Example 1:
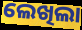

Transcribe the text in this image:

ଲେଖିଲା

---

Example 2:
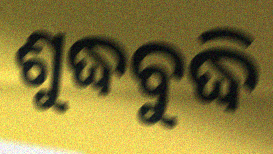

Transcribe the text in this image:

ଶୁଦ୍ଧବୁଦ୍ଧି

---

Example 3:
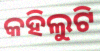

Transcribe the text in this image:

କହିଲୁଟି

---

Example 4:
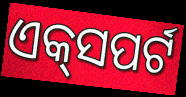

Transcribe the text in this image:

ଏକ୍‌ସପର୍ଟ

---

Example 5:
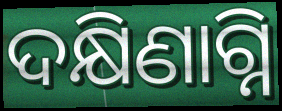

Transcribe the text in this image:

ଦକ୍ଷିଣାଗ୍ନି